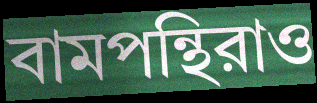
বামপন্থিরাও